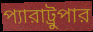
প্যারাট্রুপার